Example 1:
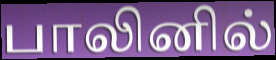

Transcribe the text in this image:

பாலினில்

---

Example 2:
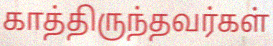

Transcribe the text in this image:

காத்திருந்தவர்கள்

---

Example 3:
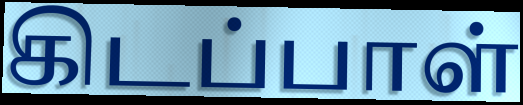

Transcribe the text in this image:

கிடப்பாள்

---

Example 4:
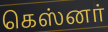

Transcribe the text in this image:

கெஸ்னர்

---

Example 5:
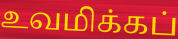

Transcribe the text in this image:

உவமிக்கப்